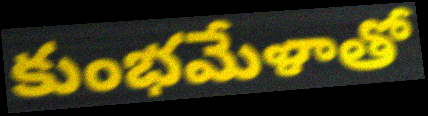
కుంభమేళాతో